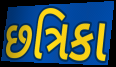
છત્રિકા